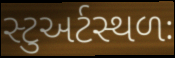
સ્ટુઅર્ટસ્થળઃ